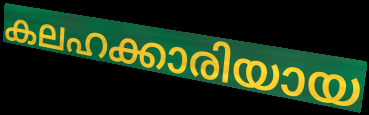
കലഹക്കാരിയായ